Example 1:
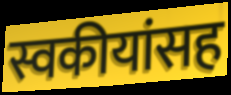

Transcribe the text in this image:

स्वकीयांसह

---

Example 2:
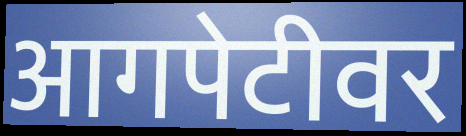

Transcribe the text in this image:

आगपेटीवर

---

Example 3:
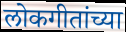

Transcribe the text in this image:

लोकगीतांच्या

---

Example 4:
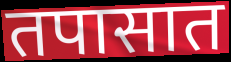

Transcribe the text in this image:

तपासात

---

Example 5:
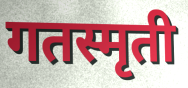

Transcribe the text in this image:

गतस्मृती